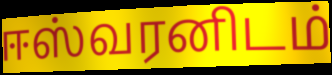
ஈஸ்வரனிடம்